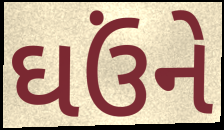
ઘઉંને